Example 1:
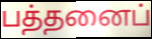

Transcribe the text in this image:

பத்தனைப்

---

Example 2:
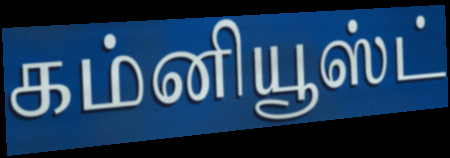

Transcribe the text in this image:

கம்னியூஸ்ட்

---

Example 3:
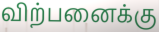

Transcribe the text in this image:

விற்பனைக்கு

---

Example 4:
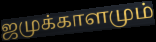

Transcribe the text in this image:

ஜமுக்காளமும்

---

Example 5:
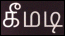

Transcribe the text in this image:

கீமடி